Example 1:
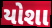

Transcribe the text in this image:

યોશા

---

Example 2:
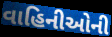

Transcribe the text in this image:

વાહિનીઓની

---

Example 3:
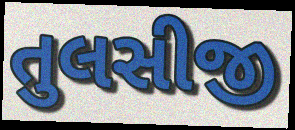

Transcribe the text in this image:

તુલસીજી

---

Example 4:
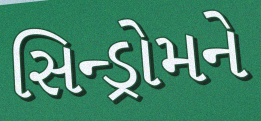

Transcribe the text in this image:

સિન્ડ્રોમને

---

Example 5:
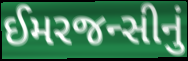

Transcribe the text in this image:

ઈમરજન્સીનું